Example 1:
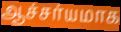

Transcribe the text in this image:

ஆச்சர்யமாக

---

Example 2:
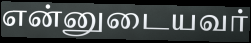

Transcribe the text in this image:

என்னுடையவர்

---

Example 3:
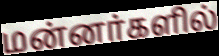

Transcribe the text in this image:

மன்னர்களில்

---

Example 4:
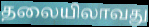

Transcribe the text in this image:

தலையிலாவது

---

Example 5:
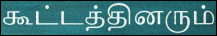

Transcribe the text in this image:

கூட்டத்தினரும்